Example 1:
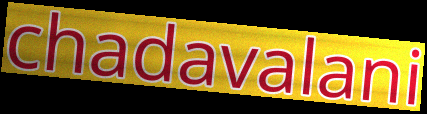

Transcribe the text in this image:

chadavalani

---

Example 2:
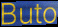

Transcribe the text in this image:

Buto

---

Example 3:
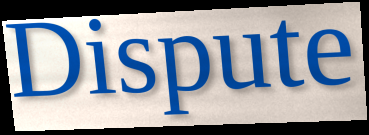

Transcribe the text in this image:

Dispute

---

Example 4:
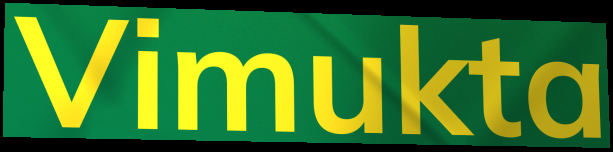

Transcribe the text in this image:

Vimukta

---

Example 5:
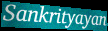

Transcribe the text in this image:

Sankrityayan